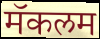
मॅकलम